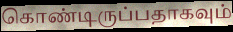
கொண்டிருப்பதாகவும்